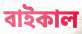
বাইকাল